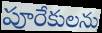
పూరేకులను